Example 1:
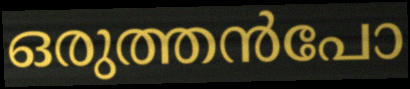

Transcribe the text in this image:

ഒരുത്തൻപോ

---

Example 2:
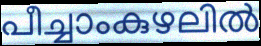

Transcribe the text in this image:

പീച്ചാംകുഴലിൽ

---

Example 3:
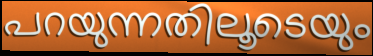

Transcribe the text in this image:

പറയുന്നതിലൂടെയും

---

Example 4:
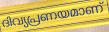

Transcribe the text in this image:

ദിവ്യപ്രണയമാണ്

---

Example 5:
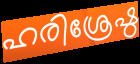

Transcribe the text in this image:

ഹരിശ്രേഷ്ഠ